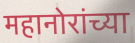
महानोरांच्या